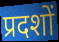
प्रदशों